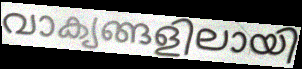
വാക്യങ്ങളിലായി